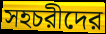
সহচরীদের